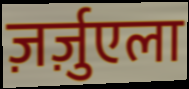
ज़र्ज़ुएला